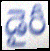
డైరీ